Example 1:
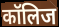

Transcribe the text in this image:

कॉलिज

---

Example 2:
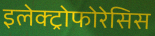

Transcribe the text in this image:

इलेक्ट्रोफोरेसिस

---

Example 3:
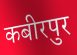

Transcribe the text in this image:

कबीरपुर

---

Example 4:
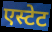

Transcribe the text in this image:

एस्टेट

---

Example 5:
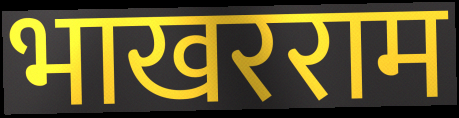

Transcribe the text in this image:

भाखरराम